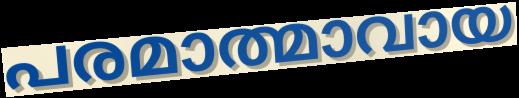
പരമാത്മാവായ